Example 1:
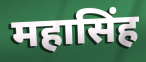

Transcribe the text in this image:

महासिंह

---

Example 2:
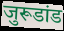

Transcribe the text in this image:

जुरूडांड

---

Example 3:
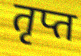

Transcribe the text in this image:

तृप्त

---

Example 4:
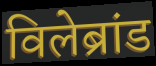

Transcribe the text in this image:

विलेब्रांड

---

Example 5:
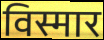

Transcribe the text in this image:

विस्मार